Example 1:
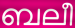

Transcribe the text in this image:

ബലീ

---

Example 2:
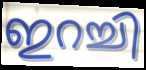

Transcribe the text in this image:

ഇറച്ചി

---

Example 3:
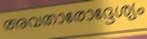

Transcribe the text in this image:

അവതാരോദ്ദേശ്യം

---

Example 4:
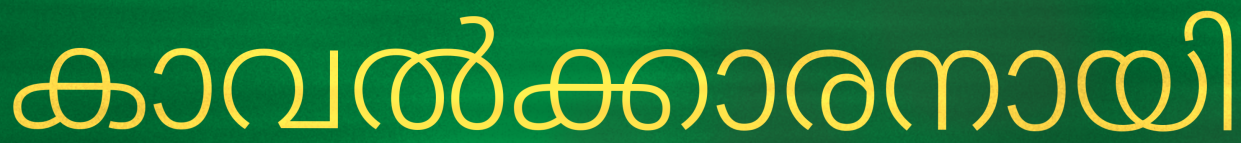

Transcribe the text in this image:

കാവൽക്കാരനായി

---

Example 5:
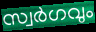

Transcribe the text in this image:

സ്വർഗവും